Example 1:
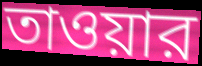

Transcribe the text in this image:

তাওয়ার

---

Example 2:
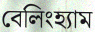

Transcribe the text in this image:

বেলিংহ্যাম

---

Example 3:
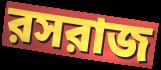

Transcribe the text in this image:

রসরাজ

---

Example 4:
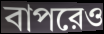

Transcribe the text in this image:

বাপরেও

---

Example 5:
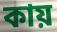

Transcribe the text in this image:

কায়